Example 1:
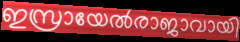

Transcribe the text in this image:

ഇസ്രായേൽരാജാവായി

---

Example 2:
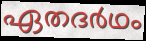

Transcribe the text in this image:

ഏതദർഥം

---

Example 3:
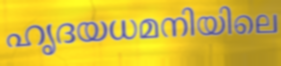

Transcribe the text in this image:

ഹൃദയധമനിയിലെ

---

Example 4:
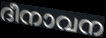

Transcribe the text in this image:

ദീനാവന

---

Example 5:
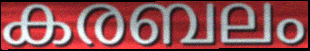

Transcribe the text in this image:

കരബലം